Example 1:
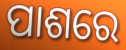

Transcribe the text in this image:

ପାଶରେ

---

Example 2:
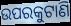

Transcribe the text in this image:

ଉପରକୁଟାଣି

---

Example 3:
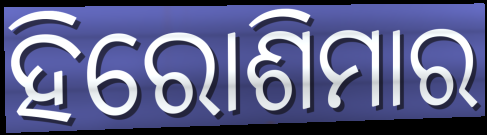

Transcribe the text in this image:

ହିରୋଶିମାର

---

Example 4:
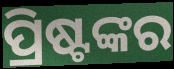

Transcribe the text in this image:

ପ୍ରିଷ୍ଟଙ୍କର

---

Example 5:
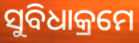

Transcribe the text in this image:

ସୁବିଧାକ୍ରମେ